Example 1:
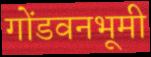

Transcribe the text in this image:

गोंडवनभूमी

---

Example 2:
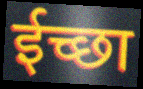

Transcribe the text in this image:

ईच्छा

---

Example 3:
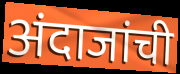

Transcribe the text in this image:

अंदाजांची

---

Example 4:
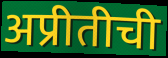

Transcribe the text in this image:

अप्रीतीची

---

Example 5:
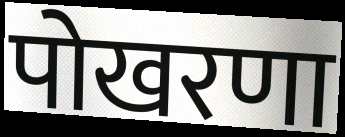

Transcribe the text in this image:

पोखरणा